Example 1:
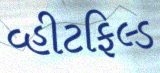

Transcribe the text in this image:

વ્હીટફિલ્ડ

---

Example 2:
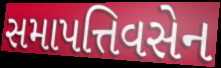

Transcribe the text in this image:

સમાપત્તિવસેન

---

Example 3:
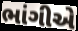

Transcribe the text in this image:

ભાંગીએ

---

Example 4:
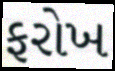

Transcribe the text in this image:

ફરોખ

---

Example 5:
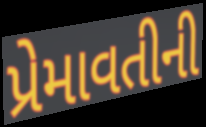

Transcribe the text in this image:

પ્રેમાવતીની